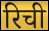
रिची